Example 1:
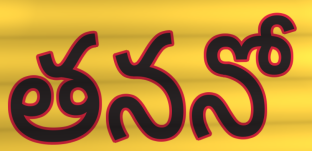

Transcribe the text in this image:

తననో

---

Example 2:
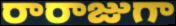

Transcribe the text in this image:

రారాజుగా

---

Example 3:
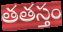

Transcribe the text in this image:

తతస్తం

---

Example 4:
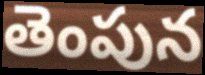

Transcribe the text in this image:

తెంపున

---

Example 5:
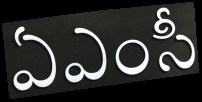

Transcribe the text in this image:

ఏఎంసీ